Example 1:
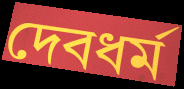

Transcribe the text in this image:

দেবধর্ম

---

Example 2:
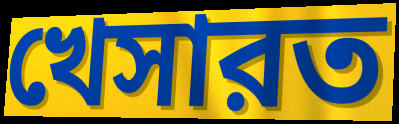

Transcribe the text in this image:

খেসারত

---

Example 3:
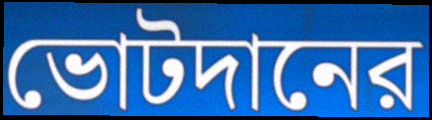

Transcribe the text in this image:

ভোটদানের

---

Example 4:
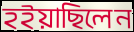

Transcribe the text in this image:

হইয়াছিলেন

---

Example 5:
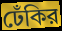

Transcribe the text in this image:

ঢেঁকির